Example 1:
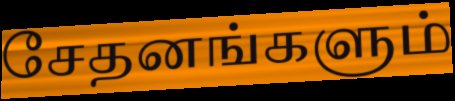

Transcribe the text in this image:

சேதனங்களும்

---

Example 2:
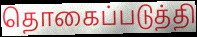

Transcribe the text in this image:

தொகைப்படுத்தி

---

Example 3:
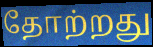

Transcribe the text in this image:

தோற்றது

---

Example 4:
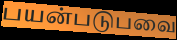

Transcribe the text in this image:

பயன்படுபவை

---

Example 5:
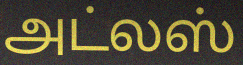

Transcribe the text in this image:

அட்லஸ்